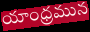
యాంధ్రమున